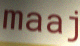
maaj